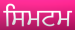
ਸਿਮਟਮ